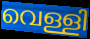
വെള്ളി